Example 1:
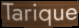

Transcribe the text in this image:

Tarique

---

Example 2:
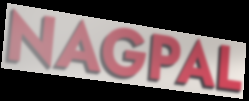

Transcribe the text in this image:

NAGPAL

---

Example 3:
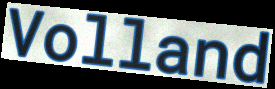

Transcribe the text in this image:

Volland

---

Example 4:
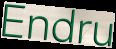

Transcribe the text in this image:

Endru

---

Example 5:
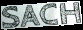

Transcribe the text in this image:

SACH